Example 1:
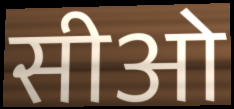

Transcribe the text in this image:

सीओ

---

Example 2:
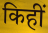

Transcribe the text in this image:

किहीं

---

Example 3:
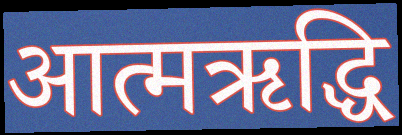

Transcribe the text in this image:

आत्मऋद्धि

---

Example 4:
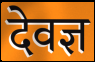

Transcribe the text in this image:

देवज्ञ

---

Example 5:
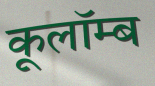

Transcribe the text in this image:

कूलॉम्ब